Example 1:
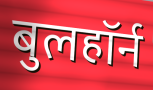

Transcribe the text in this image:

बुलहॉर्न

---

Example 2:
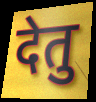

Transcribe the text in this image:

देतु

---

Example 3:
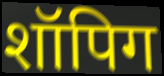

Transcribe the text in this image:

शॉपिग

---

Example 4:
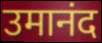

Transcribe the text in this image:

उमानंद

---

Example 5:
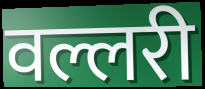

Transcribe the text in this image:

वल्लरी